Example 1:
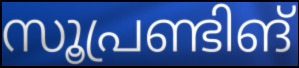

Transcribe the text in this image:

സൂപ്രണ്ടിങ്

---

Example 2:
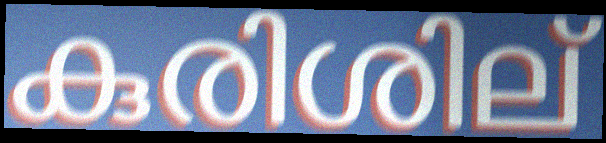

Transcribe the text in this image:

കുരിശില്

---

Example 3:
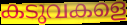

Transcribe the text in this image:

കടുവകളെ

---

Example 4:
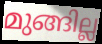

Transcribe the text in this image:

മുങ്ങില്ല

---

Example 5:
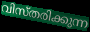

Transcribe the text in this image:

വിസ്തരിക്കുന്ന